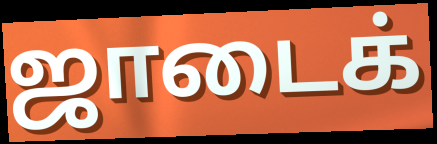
ஜாடைக்